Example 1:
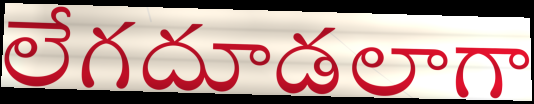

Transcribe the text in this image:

లేగదూడలాగా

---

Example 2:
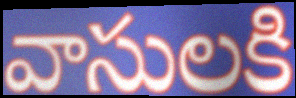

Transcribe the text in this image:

వాసులకి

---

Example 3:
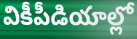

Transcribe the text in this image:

వికీపీడియాల్లో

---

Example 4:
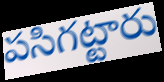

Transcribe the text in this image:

పసిగట్టారు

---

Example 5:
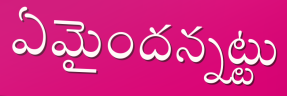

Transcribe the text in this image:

ఏమైందన్నట్టు